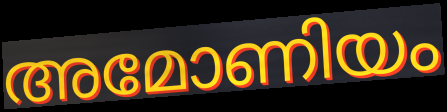
അമോണിയം